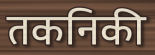
तकनिकी